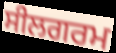
ਸੀਲਗਰਮ